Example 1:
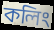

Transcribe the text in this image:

কলিং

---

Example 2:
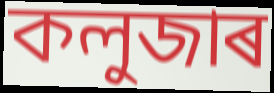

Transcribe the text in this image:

কলুজাৰ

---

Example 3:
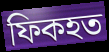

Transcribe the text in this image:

ফিকহত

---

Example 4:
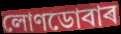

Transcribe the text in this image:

লোণডোবাৰ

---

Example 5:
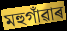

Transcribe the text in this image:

মহুগাঁৱাৰ